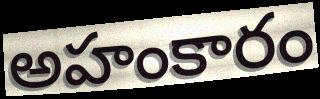
అహంకారం